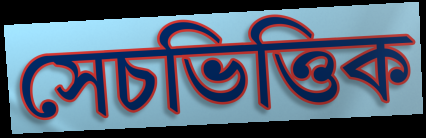
সেচভিত্তিক